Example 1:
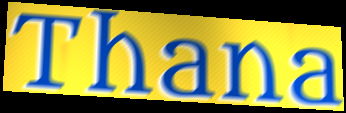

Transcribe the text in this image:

Thana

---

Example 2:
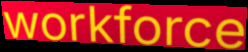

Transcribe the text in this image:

workforce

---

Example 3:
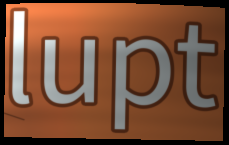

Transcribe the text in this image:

lupt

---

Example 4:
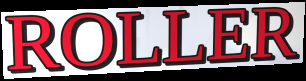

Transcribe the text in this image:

ROLLER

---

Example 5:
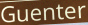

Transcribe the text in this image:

Guenter